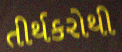
તીર્થકરોથી